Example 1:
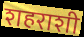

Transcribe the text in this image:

शहराशी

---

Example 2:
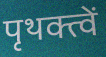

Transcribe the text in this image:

पृथक्त्वें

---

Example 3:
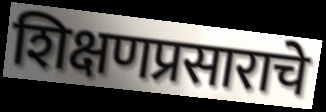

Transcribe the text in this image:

शिक्षणप्रसाराचे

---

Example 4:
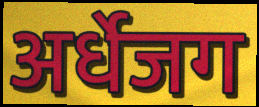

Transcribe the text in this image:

अर्धेजग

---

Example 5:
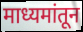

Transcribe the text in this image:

माध्यमांतून